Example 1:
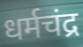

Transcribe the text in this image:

धर्मचंद्र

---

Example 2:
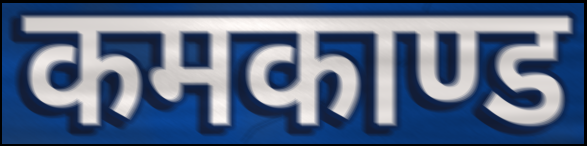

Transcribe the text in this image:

कमकाण्ड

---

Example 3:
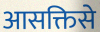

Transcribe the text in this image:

आसक्तिसे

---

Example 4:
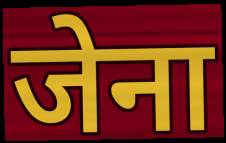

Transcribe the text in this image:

जेना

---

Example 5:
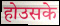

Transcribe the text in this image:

होउसके